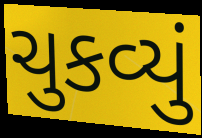
ચુકવ્યું